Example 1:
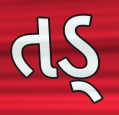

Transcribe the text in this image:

તડ્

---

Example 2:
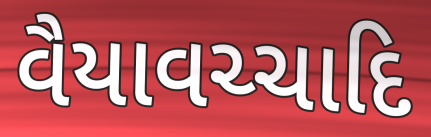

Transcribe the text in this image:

વૈયાવચ્ચાદિ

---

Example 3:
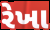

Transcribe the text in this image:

રેખા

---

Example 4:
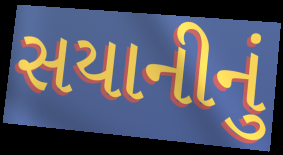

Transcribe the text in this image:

સયાનીનું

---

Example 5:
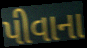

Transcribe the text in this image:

પીવાના